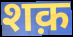
शक़